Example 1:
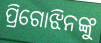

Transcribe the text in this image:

ପ୍ରିଗୋଝିନଙ୍କୁ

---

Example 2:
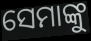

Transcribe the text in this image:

ସେମାଙ୍କୁ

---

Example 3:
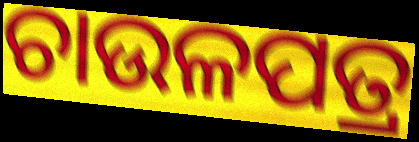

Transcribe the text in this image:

ଚାଉଳପତ୍ର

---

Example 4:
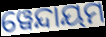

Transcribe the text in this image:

ୱେନ୍ଦାୟମ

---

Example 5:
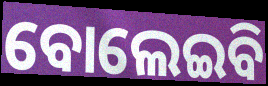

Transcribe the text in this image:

ବୋଲେଇବି